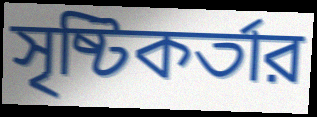
সৃষ্টিকর্তার